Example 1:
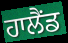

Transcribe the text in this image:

ਹਾਲੈਂਡ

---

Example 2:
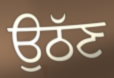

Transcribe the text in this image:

ਉਠੱਣ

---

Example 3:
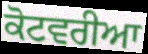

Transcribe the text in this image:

ਕੋਟਵਰੀਆ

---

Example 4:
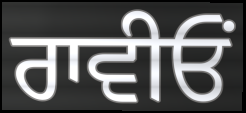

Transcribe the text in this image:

ਰਾਵੀਓਂ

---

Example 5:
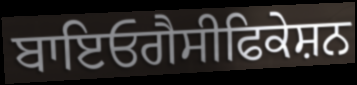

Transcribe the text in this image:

ਬਾਇਓਗੈਸੀਫਿਕੇਸ਼ਨ